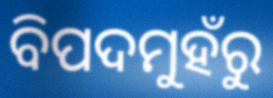
ବିପଦମୁହଁରୁ